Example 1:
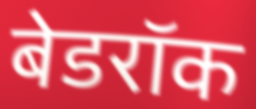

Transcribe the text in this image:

बेडरॉक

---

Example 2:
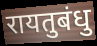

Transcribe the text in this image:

रायतुबंधु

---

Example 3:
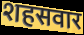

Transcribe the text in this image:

शहसवार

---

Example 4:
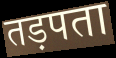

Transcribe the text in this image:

तड़पता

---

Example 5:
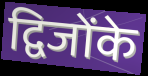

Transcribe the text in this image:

द्विजोंके